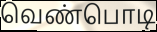
வெண்பொடி